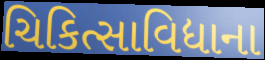
ચિકિત્સાવિદ્યાના